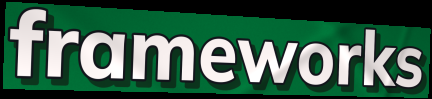
frameworks